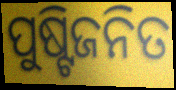
ପୁଷ୍ଟିଜନିତ